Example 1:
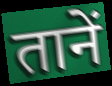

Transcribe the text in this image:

तानें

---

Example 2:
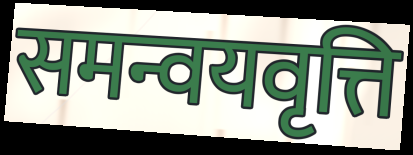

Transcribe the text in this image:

समन्वयवृत्ति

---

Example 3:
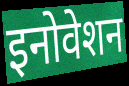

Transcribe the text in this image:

इनोवेशन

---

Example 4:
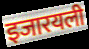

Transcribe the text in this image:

इजारयली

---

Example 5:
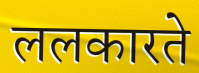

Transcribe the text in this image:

ललकारते